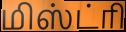
மிஸ்ட்ரி